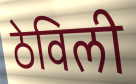
ठेविली